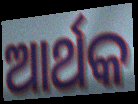
ଆର୍ଥକ